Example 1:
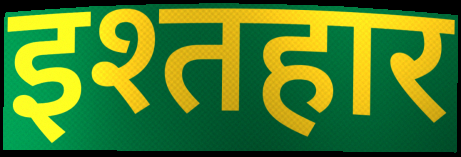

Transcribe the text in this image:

इश्तहार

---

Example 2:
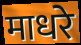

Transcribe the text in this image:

माधरे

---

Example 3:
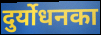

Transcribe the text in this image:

दुर्योधनका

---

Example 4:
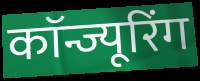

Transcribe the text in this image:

कॉन्ज्यूरिंग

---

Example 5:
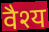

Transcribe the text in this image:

वैश्य